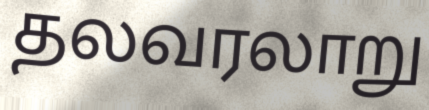
தலவரலாறு